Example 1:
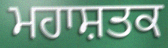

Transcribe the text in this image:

ਮਹਾਸ਼ਤਕ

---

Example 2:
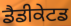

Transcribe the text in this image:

ਡੈਡੀਕੇਟਡ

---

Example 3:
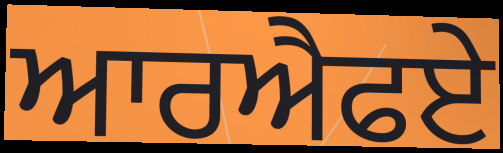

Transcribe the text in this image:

ਆਰਐਫਏ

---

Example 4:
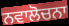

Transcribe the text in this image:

ਨਵਾਲੋਚਨਾ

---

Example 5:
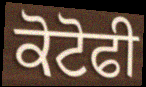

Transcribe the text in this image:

ਕੋਟੋਫੀ